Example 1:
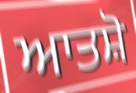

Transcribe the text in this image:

ਆਤਸ਼ੋ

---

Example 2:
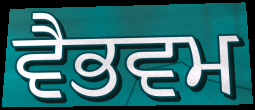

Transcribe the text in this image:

ਵੈਭਵਮ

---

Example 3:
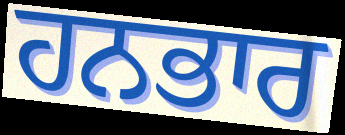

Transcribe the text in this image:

ਹਨਭਾਰ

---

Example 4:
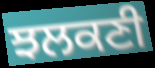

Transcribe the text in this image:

ਝਲਕਣੀ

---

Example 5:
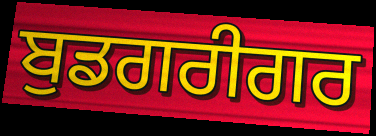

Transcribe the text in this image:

ਬੁਡਗਰੀਗਰ